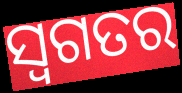
ସ୍ୱଗତର